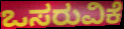
ಒಸರುವಿಕೆ